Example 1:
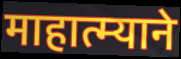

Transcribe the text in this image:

माहात्म्याने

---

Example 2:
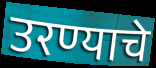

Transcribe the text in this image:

उरण्याचे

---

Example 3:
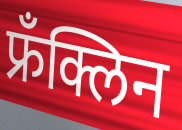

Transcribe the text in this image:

फ्रँक्लिन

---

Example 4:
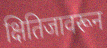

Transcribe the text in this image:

क्षितिजावरून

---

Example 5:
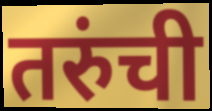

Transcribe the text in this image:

तरुंची